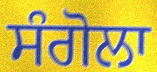
ਸੰਗੋਲਾ